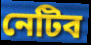
নেটিব